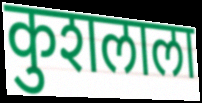
कुशलाला